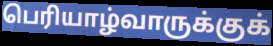
பெரியாழ்வாருக்குக்